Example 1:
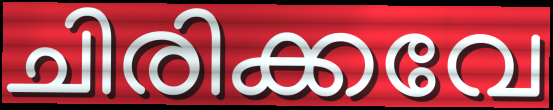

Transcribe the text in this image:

ചിരിക്കവേ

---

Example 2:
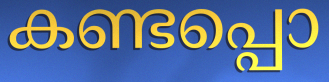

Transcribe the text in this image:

കണ്ടപ്പൊ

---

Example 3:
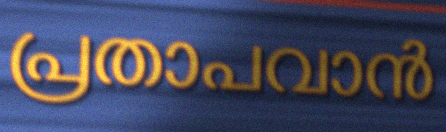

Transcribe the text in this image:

പ്രതാപവാൻ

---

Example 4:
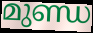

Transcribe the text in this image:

മുണ്ഡ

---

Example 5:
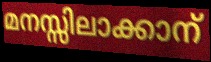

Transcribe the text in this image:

മനസ്സിലാക്കാന്